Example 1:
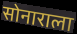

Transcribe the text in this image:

सोनाराला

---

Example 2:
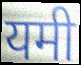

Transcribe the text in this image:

यमी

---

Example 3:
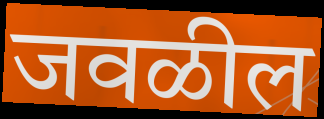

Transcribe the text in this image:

जवळील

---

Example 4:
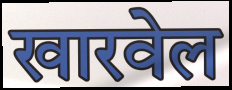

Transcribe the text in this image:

खारवेल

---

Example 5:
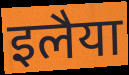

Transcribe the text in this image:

इलैया